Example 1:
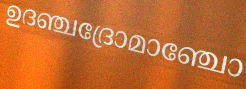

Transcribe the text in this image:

ഉദഞ്ചദ്രോമാഞ്ചോ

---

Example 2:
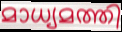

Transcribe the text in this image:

മാധ്യമത്തി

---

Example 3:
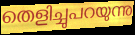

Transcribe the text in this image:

തെളിച്ചുപറയുന്നു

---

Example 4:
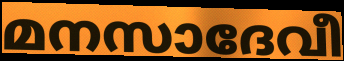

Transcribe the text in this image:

മനസാദേവീ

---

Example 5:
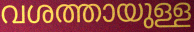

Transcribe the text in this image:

വശത്തായുള്ള